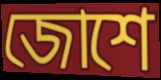
জোশে